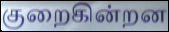
குறைகின்றன